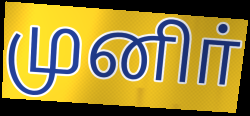
முனிர்